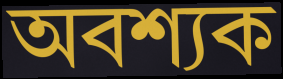
অবশ্যক